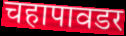
चहापावडर